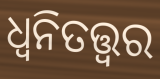
ଧ୍ଵନିତତ୍ତ୍ଵର